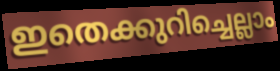
ഇതെക്കുറിച്ചെല്ലാം